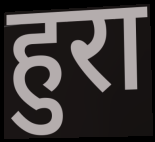
हुरा